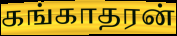
கங்காதரன்